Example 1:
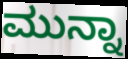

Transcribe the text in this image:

ಮುನ್ನಾ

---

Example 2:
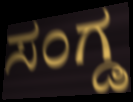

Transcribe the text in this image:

ಸಂಗ್ಡ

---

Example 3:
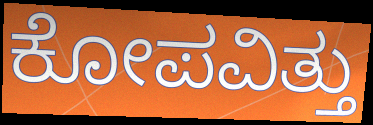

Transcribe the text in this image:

ಕೋಪವಿತ್ತು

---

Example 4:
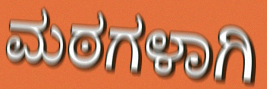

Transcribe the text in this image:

ಮಠಗಳಾಗಿ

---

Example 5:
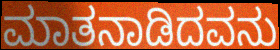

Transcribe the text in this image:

ಮಾತನಾಡಿದವನು